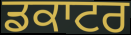
ਡਕਾਟਰ